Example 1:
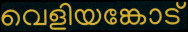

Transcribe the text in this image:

വെളിയങ്കോട്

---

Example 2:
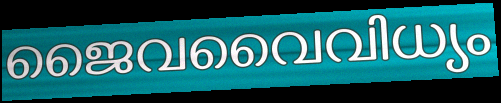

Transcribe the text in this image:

ജൈവവൈവിധ്യം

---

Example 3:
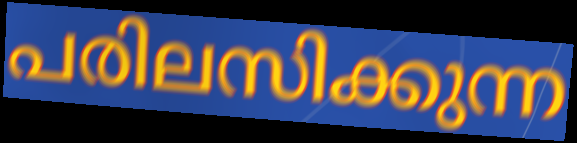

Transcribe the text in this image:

പരിലസിക്കുന്ന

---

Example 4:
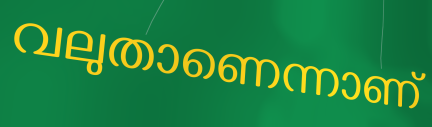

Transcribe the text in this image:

വലുതാണെന്നാണ്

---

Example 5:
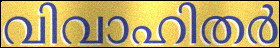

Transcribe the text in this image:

വിവാഹിതർ